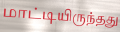
மாட்டியிருந்தது